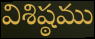
విశిష్ఠము